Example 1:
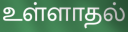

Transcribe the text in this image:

உள்ளாதல்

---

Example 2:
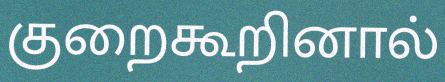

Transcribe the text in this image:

குறைகூறினால்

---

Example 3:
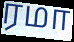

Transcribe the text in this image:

ரமா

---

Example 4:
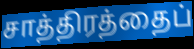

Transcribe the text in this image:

சாத்திரத்தைப்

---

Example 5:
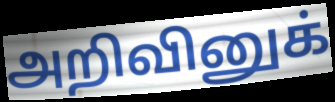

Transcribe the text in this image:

அறிவினுக்